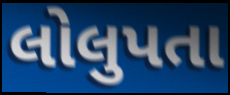
લોલુપતા